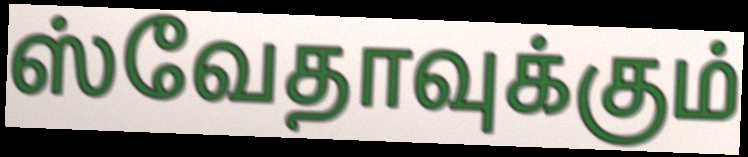
ஸ்வேதாவுக்கும்